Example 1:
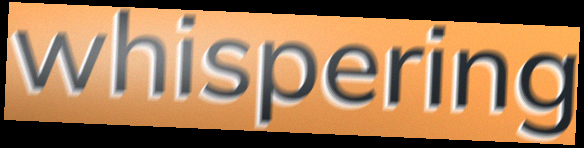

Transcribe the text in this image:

whispering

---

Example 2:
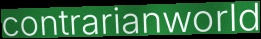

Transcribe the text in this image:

contrarianworld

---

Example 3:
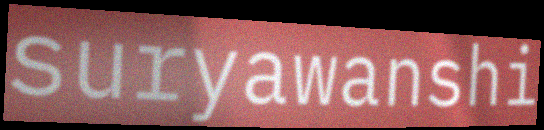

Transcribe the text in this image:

suryawanshi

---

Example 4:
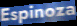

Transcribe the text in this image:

Espinoza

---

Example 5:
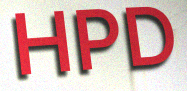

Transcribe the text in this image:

HPD